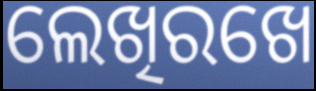
ଲେଖିରଖେ